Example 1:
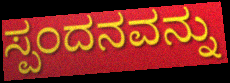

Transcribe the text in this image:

ಸ್ಪಂದನವನ್ನು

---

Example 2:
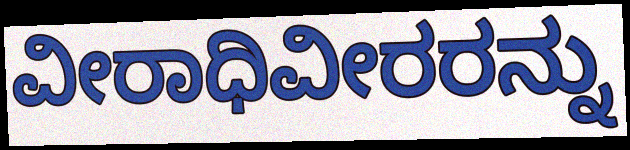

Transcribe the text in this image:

ವೀರಾಧಿವೀರರನ್ನು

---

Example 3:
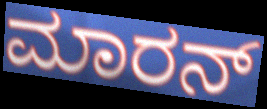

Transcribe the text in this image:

ಮಾರನ್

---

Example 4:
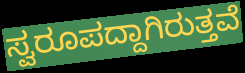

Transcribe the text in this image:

ಸ್ವರೂಪದ್ದಾಗಿರುತ್ತವೆ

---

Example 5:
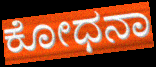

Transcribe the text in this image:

ಕೋಧನಾ